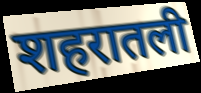
शहरातली